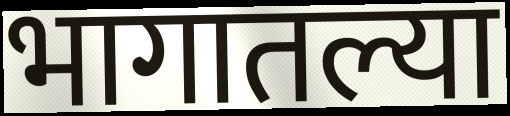
भागातल्या